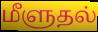
மீளுதல்